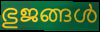
ഭുജങ്ങൾ